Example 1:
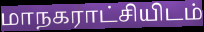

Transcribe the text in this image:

மாநகராட்சியிடம்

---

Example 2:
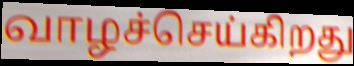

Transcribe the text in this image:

வாழச்செய்கிறது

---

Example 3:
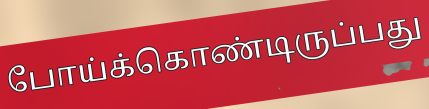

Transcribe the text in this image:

போய்க்கொண்டிருப்பது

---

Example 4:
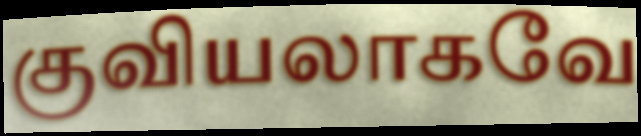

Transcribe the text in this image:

குவியலாகவே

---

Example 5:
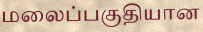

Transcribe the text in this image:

மலைப்பகுதியான